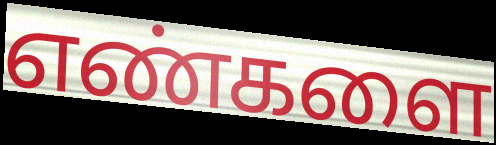
எண்களை